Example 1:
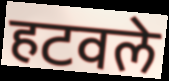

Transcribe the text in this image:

हटवले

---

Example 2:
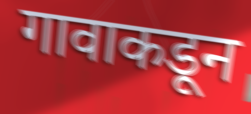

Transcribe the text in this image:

गावाकडून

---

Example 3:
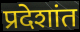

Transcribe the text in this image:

प्रदेशांत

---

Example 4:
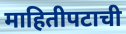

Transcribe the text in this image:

माहितीपटाची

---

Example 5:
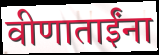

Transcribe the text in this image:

वीणाताईंना